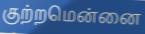
குற்றமென்னை